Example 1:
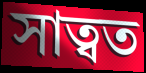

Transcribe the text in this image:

সাত্বত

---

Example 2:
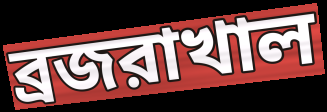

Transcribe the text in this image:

ব্রজরাখাল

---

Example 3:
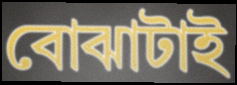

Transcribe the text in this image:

বোঝাটাই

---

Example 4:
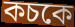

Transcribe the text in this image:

কচকে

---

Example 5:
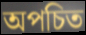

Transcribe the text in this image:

অপচিত